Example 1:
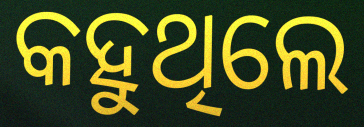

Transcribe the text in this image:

କହୁଥିଲେ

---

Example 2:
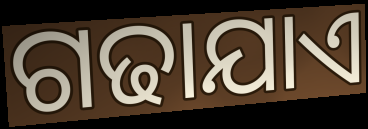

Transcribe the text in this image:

ଗଢାଯାଏ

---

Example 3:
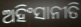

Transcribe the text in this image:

ଅହିଂସାନୀତି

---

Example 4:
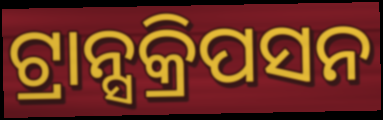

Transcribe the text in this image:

ଟ୍ରାନ୍ସକ୍ରିପସନ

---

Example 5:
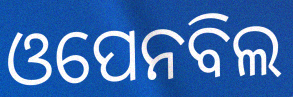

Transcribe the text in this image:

ଓପେନବିଲ